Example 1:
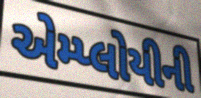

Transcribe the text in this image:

એમ્પ્લોયીની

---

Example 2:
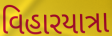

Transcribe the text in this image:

વિહારયાત્રા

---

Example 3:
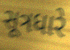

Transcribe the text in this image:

સૂત્રધારે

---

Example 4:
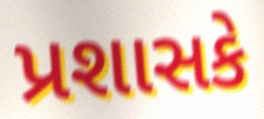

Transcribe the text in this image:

પ્રશાસકે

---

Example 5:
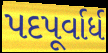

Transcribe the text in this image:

પદપૂર્વાર્ધ